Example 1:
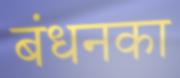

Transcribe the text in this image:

बंधनका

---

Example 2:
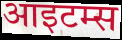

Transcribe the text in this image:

आइटम्‍स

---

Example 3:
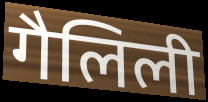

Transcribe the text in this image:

गैलिली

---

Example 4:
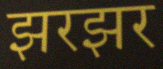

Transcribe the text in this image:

झरझर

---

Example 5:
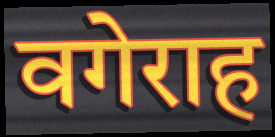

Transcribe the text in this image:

वगेराह